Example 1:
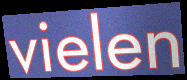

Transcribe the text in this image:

vielen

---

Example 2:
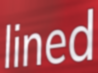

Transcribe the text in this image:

lined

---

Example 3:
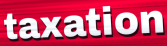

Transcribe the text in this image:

taxation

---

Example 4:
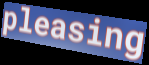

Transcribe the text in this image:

pleasing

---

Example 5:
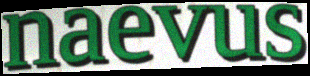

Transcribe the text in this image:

naevus